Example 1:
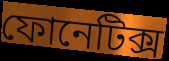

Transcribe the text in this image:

ফোনেটিক্স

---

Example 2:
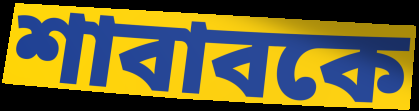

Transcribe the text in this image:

শাবাবকে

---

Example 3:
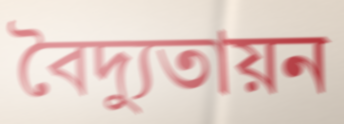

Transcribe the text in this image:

বৈদ্যুতায়ন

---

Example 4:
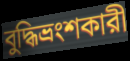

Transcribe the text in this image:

বুদ্ধিভ্রংশকারী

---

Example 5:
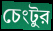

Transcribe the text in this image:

চেংটুর